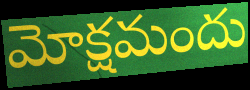
మోక్షమందు